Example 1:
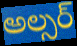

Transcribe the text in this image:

అల్సర్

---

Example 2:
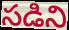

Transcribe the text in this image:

సడిని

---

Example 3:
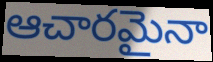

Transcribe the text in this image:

ఆచారమైనా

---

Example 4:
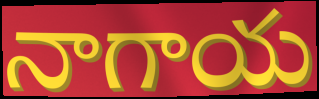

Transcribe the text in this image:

నాగాయ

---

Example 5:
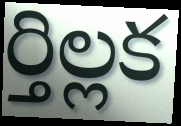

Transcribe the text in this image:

ర్తిల్లక